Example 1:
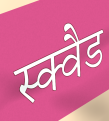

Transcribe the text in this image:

स्क्वैड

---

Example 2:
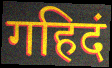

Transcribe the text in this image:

गहिदं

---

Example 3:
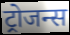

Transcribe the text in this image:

ट्रोजन्स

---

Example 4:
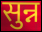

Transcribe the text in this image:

सुन्न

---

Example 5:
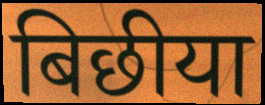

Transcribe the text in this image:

बिछीया